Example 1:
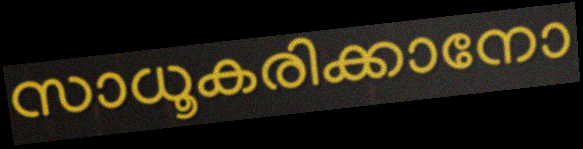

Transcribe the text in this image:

സാധൂകരിക്കാനോ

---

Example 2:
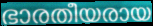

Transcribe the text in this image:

ഭാരതീയരായ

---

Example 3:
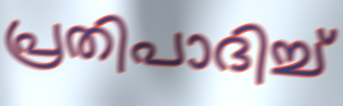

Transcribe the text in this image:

പ്രതിപാദിച്ച്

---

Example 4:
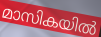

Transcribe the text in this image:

മാസികയിൽ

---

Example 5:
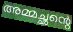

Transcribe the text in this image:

അമ്മച്ഛന്റെ